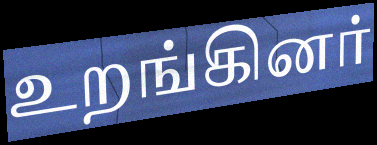
உறங்கினர்